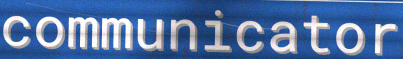
communicator